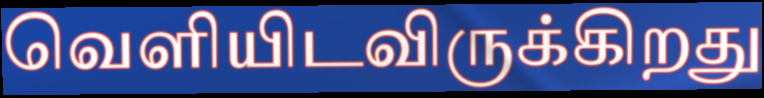
வெளியிடவிருக்கிறது